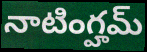
నాటింగ్హమ్